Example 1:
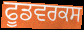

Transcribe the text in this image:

ਫੂਡਵਰਕਸ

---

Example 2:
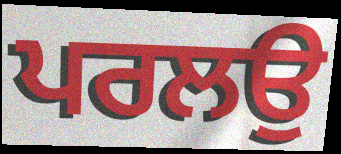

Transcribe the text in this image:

ਪਰਲਉ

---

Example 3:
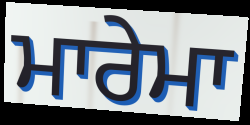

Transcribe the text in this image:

ਮਾਰੇਮਾ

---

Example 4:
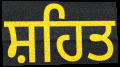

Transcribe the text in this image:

ਸ਼ਹਿਤ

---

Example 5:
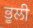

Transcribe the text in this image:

ਭੂਲੀ